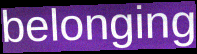
belonging